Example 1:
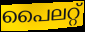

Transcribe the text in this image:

പൈലറ്റ്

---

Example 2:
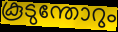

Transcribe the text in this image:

കൂടുന്തോറും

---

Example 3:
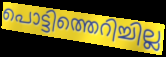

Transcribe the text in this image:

പൊട്ടിത്തെറിച്ചില്ല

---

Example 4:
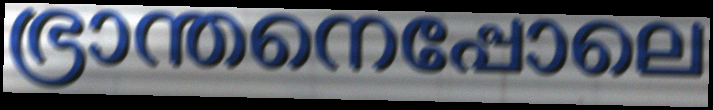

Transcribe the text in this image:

ഭ്രാന്തനെപ്പോലെ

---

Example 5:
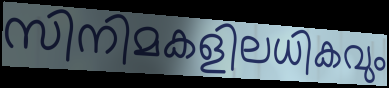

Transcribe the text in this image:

സിനിമകളിലധികവും